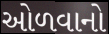
ઓળવાનો